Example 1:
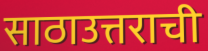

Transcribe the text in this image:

साठाउत्तराची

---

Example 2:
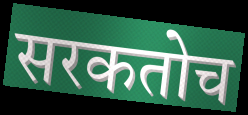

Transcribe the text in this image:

सरकतोच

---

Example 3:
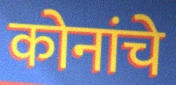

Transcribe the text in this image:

कोनांचे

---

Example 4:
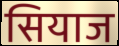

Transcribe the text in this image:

सियाज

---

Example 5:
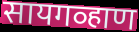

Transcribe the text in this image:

सायगव्हाण